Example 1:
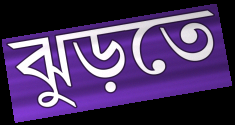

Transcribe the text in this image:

ঝুড়তে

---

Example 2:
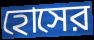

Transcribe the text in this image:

হোসের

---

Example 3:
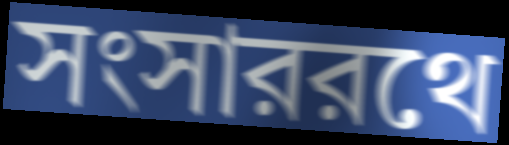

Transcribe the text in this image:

সংসাররথে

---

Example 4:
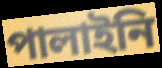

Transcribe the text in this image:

পালাইনি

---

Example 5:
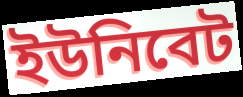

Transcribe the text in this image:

ইউনিবেট